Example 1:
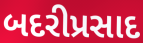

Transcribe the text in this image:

બદરીપ્રસાદ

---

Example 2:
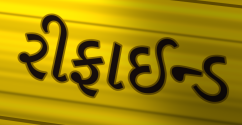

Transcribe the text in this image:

રીફાઈન્ડ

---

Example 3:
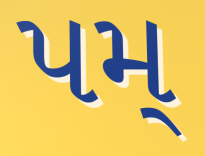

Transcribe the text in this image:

પમ્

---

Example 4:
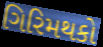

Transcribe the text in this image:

ગિરિમથકો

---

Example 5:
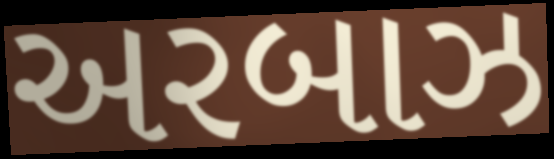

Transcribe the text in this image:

અરબાઝ